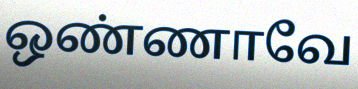
ஒண்ணாவே